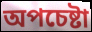
অপচেষ্টা